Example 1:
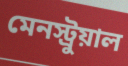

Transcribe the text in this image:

মেনস্ট্রুয়াল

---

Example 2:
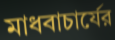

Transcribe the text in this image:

মাধবাচার্যের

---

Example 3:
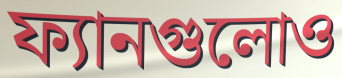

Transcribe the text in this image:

ফ্যানগুলোও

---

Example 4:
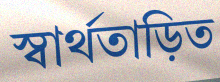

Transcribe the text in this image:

স্বার্থতাড়িত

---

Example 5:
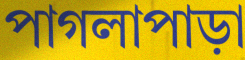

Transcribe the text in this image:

পাগলাপাড়া